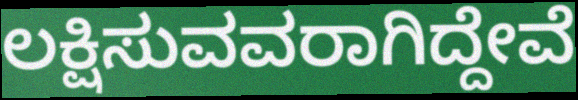
ಲಕ್ಷಿಸುವವರಾಗಿದ್ದೇವೆ